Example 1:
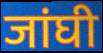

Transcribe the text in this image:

जांघी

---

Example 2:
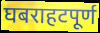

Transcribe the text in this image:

घबराहटपूर्ण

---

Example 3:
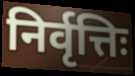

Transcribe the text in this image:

निर्वृत्तिः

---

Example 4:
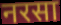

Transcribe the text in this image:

नरसा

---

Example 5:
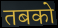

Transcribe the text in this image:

तबको